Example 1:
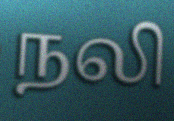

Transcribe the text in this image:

நலி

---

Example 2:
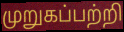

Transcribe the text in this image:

முறுகப்பற்றி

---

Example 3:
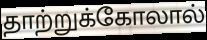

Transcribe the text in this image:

தாற்றுக்கோலால்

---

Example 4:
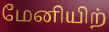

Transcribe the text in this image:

மேனியிற்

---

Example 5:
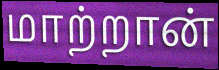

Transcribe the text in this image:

மாற்றான்